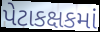
પેટાકક્ષકમાં